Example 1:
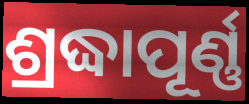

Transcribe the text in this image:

ଶ୍ରଦ୍ଧାପୂର୍ଣ୍ଣ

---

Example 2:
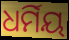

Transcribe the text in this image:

ଧର୍ମିୟ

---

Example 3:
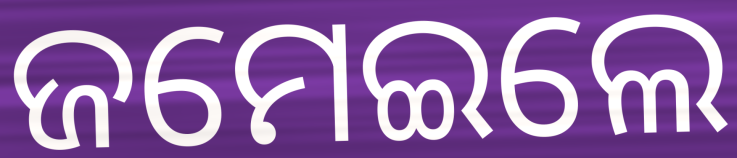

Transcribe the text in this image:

ଜମେଇଲେ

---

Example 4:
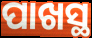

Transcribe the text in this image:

ପାଖସ୍ଥ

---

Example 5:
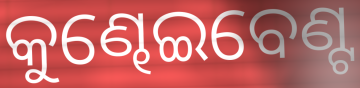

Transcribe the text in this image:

କୁଣ୍ଢେଇବେଣ୍ଟ